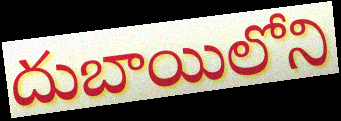
దుబాయిలోని